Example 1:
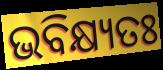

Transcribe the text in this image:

ଭବିକ୍ଷ୍ୟତଃ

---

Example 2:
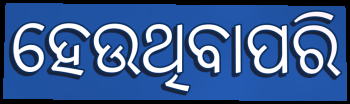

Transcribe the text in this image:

ହେଉଥିବାପରି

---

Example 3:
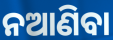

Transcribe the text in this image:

ନଆଣିବା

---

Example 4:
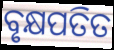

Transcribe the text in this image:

ବୃକ୍ଷପତିତ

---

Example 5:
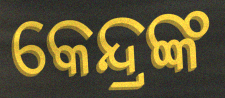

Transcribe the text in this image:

କେନ୍ଦ୍ରଙ୍କ